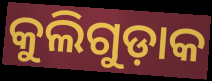
କୁଲିଗୁଡ଼ାକ